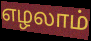
எழலாம்